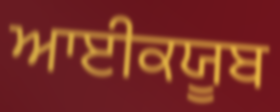
ਆਈਕਯੂਬ